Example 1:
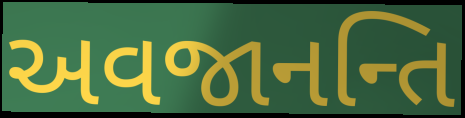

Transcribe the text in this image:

અવજાનન્તિ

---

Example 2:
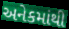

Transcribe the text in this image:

અનેકમાંથી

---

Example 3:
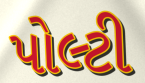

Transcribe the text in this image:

પોલ્ટી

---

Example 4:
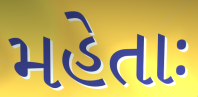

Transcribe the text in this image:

મહેતાઃ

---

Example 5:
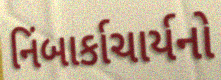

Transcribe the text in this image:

નિંબાર્કાચાર્યનો